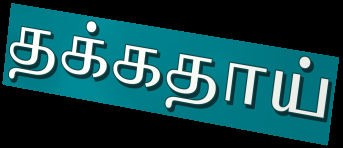
தக்கதாய்